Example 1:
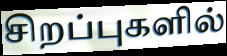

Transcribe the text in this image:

சிறப்புகளில்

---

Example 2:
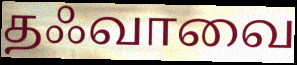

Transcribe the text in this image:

தஃவாவை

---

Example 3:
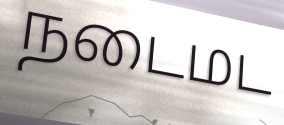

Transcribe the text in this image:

நடைமட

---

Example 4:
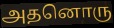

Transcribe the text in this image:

அதனொரு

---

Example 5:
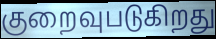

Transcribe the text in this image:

குறைவுபடுகிறது